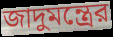
জাদুমন্ত্রের